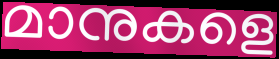
മാനുകളെ